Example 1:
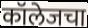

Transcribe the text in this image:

कॉलेजचा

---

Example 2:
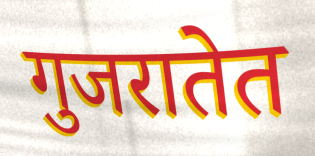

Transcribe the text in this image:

गुजरातेत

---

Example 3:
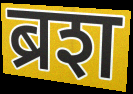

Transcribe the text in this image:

ब्रश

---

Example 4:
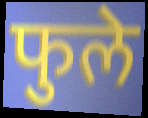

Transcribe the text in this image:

फुले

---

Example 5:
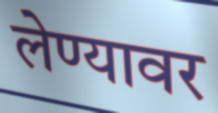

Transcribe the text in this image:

लेण्यावर